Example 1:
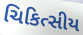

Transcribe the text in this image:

ચિકિત્સીય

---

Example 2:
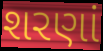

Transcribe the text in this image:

શરણાં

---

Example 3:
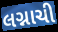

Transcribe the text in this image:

લગ્નાચી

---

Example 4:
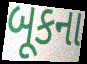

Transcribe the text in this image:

બૂકના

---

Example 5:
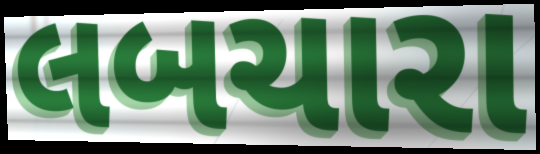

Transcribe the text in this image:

લબચારા